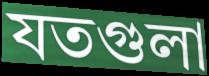
যতগুলা